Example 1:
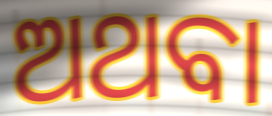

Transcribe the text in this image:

ଅଥବା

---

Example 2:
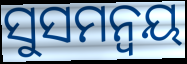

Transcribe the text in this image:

ସୁସମନ୍ଵୟ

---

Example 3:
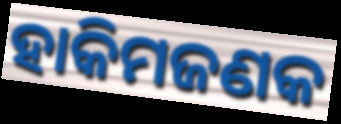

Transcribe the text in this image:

ହାକିମଜଣକ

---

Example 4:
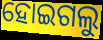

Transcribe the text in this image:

ହୋଇଗଲୁ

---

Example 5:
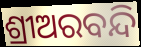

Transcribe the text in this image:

ଶ୍ରୀଅରବନ୍ଦି